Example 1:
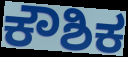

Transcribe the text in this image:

ಕೌಶಿಕ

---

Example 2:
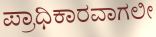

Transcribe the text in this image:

ಪ್ರಾಧಿಕಾರವಾಗಲೀ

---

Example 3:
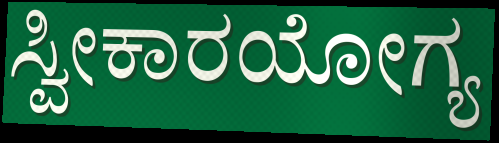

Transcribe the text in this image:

ಸ್ವೀಕಾರಯೋಗ್ಯ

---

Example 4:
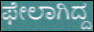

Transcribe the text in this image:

ಫೇಲಾಗಿದ್ದ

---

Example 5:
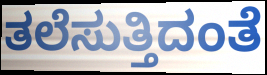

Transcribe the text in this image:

ತಲೆಸುತ್ತಿದಂತೆ